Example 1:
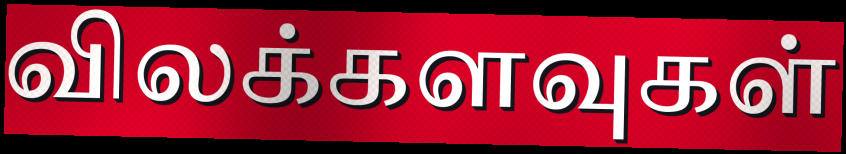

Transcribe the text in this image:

விலக்களவுகள்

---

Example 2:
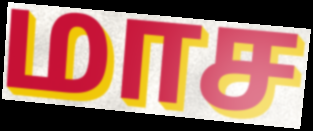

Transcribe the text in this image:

மாச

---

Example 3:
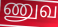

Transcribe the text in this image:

ணுவ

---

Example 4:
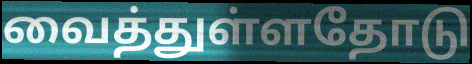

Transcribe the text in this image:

வைத்துள்ளதோடு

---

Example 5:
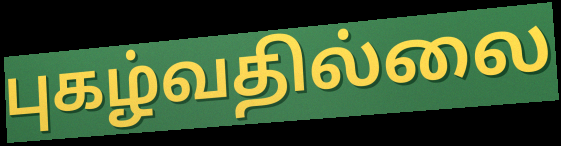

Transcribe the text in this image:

புகழ்வதில்லை